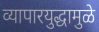
व्यापारयुद्धामुळे